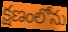
క్షణంలోను